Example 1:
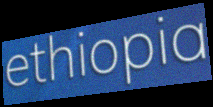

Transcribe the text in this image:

ethiopia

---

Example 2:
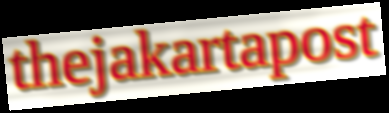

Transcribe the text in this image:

thejakartapost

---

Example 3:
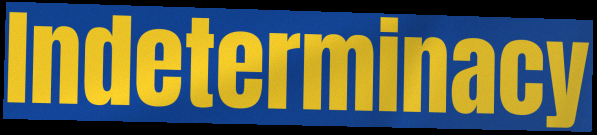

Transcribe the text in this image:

Indeterminacy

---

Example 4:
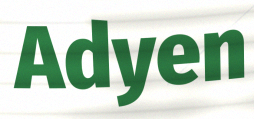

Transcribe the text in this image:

Adyen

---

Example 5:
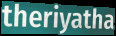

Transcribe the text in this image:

theriyatha